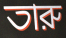
তাৰু